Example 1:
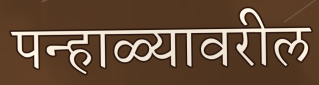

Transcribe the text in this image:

पन्हाळ्यावरील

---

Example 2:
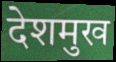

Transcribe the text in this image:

देशमुख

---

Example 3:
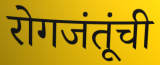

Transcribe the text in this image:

रोगजंतूंची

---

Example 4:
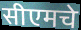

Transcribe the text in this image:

सीएमचे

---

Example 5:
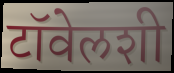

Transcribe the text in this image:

टॉवेलशी